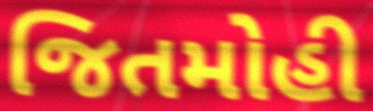
જિતમોહી